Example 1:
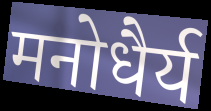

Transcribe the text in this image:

मनोधैर्य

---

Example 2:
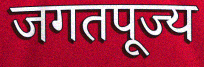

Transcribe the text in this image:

जगतपूज्य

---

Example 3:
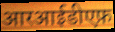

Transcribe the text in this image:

आरआईडीएफ़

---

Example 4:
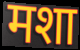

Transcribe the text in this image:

मशा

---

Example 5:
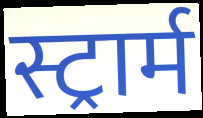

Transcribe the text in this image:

स्ट्रार्म